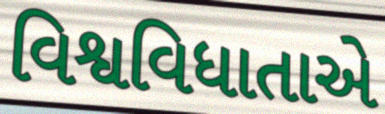
વિશ્વવિધાતાએ